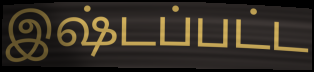
இஷ்டப்பட்ட